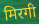
मिरगी